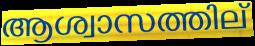
ആശ്വാസത്തില്